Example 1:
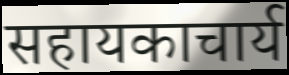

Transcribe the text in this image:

सहायकाचार्य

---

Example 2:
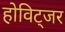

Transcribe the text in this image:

होविट्जर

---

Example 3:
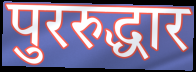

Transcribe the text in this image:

पुररुद्धार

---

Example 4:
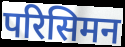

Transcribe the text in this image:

परिसिमन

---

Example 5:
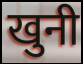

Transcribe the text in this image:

खुनी